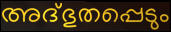
അദ്ഭുതപ്പെടും